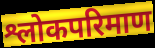
श्लोकपरिमाण